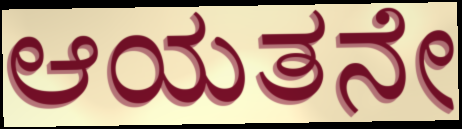
ಆಯತನೇ